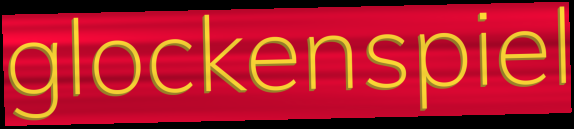
glockenspiel